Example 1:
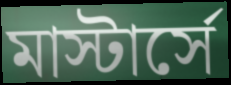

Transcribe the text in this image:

মাস্টার্সে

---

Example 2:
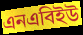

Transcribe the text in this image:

এনএবিইউ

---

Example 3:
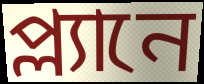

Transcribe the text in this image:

প্ল্যানে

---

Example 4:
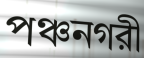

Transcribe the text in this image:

পঞ্চনগরী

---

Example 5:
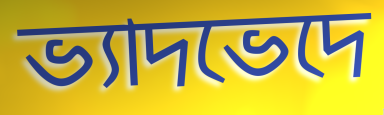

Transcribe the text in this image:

ভ্যাদভেদে